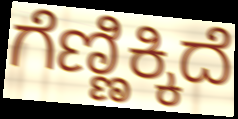
ಗೆಣ್ಣಿಕ್ಕಿದೆ